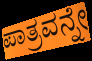
ಪಾತ್ರವನ್ನೇ